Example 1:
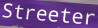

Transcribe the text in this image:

Streeter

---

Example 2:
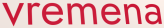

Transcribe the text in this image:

vremena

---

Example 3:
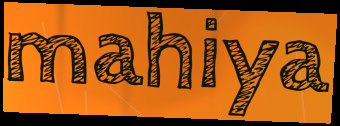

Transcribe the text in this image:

mahiya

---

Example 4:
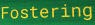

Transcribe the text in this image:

Fostering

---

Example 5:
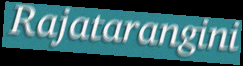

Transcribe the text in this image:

Rajatarangini